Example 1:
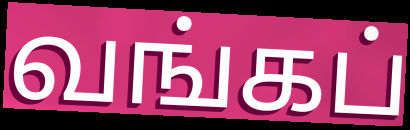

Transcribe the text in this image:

வங்கப்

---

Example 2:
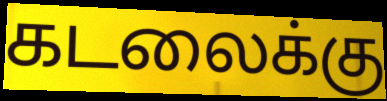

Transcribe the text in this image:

கடலைக்கு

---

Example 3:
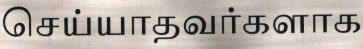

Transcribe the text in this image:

செய்யாதவர்களாக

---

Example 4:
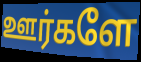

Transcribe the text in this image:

ஊர்களே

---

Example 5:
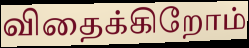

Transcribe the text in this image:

விதைக்கிறோம்